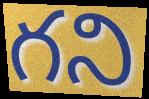
గని